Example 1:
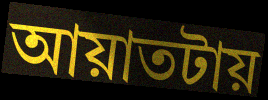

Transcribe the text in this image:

আয়াতটায়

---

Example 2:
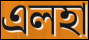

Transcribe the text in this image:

এলহা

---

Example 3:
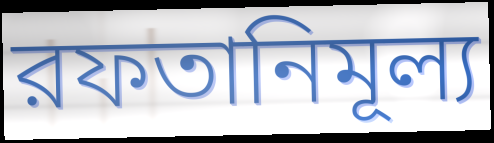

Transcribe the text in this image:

রফতানিমূল্য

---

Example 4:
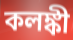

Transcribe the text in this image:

কলঙ্কী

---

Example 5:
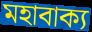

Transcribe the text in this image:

মহাবাক্য